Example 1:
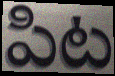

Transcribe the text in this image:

పిట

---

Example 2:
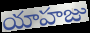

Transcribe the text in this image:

యాహజు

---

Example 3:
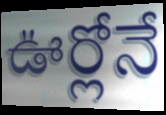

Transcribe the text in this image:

ఊర్లోనే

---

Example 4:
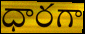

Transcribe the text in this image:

ధారగా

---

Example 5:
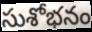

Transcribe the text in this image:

సుశోభనం